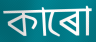
কাৰো